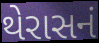
થેરાસનં